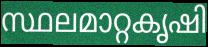
സ്ഥലമാറ്റകൃഷി